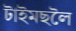
টাইমছলৈ